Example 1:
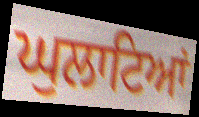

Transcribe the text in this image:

ਘੁਲਾਟਿਆਂ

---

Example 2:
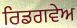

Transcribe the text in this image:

ਰਿਡਗਵੇਅ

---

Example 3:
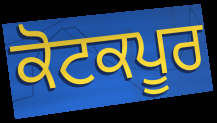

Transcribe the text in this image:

ਕੋਟਕਪੂਰ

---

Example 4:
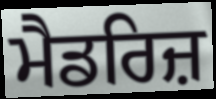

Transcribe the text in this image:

ਮੈਡਰਿਜ਼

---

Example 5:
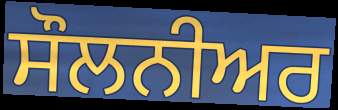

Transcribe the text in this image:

ਸੌਲਨੀਅਰ